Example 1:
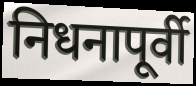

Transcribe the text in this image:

निधनापूर्वी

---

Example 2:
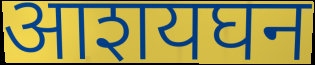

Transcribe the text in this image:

आशयघन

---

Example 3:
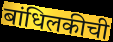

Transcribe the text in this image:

बांधिलकीची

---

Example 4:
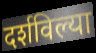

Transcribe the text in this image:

दर्शविल्या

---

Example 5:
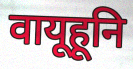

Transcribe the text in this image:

वायूहूनि